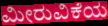
ಮೀರುವಿಕೆಯ